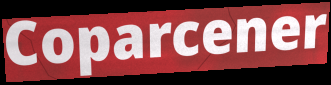
Coparcener